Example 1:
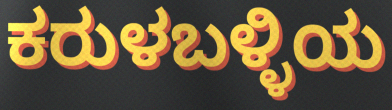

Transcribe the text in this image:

ಕರುಳಬಳ್ಳಿಯ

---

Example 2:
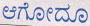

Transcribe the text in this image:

ಆಗೋದೂ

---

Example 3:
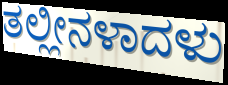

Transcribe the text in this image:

ತಲ್ಲೀನಳಾದಳು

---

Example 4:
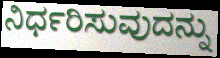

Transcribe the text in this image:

ನಿರ್ಧರಿಸುವುದನ್ನು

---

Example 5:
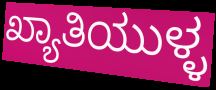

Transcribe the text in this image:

ಖ್ಯಾತಿಯುಳ್ಳ